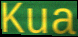
Kua